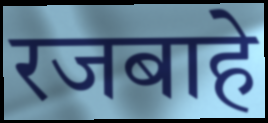
रजबाहे